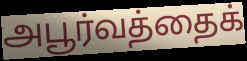
அபூர்வத்தைக்